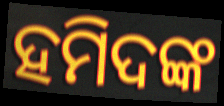
ହମିଦଙ୍କ